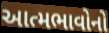
આત્મભાવોનો